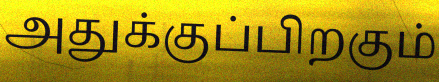
அதுக்குப்பிறகும்